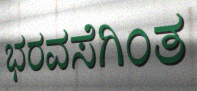
ಭರವಸೆಗಿಂತ